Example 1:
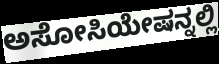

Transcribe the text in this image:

ಅಸೋಸಿಯೇಷನ್ನಲ್ಲಿ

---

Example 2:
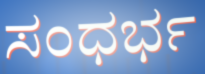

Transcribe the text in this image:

ಸಂಧರ್ಭ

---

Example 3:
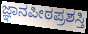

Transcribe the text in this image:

ಜ್ಞಾನಪೀಠಪ್ರಶಸ್ತಿ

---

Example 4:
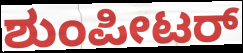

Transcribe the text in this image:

ಶುಂಪೀಟರ್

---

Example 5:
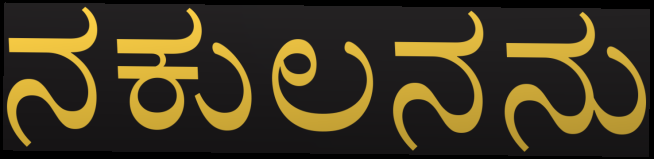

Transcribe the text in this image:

ನಕುಲನನು